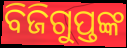
ବିଜିଗୁପ୍ତଙ୍କ